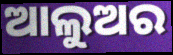
ଆଲୁଅର